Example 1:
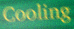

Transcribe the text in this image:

Cooling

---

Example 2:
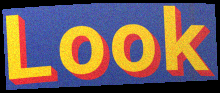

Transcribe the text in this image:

Look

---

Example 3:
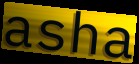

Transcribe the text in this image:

asha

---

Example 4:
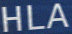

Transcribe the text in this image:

HLA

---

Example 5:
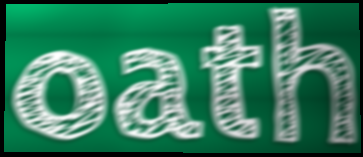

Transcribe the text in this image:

oath